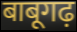
बाबूगढ़